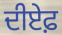
ਦੀਏਫ਼